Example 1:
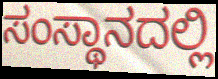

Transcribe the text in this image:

ಸಂಸ್ಥಾನದಲ್ಲಿ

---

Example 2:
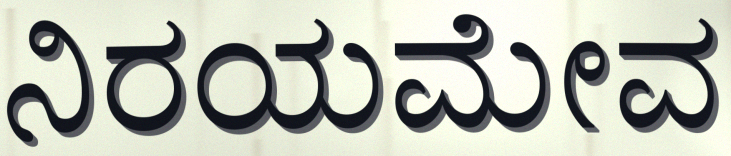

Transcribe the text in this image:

ನಿರಯಮೇವ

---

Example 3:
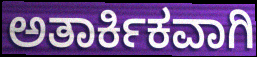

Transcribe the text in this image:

ಅತಾರ್ಕಿಕವಾಗಿ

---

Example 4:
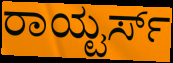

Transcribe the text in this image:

ರಾಯ್ಟರ್ಸ್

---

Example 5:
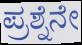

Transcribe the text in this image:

ಪ್ರಶ್ನೆನೇ